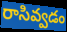
రాసివ్వడం